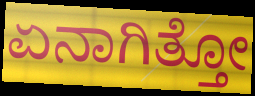
ಏನಾಗಿತ್ತೋ